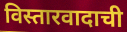
विस्तारवादाची